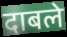
दाबले